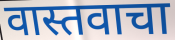
वास्तवाचा